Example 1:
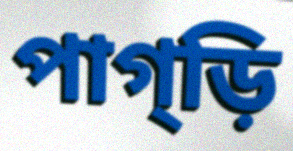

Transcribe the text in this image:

পাগ্ড়ি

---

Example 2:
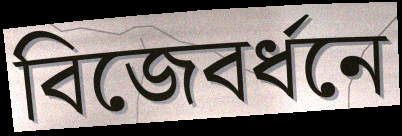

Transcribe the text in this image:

বিজেবর্ধনে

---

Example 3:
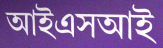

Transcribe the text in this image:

আইএসআই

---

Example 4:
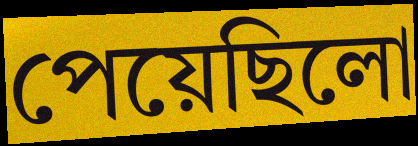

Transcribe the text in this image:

পেয়েছিলো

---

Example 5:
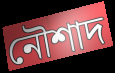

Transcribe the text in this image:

নৌশাদ